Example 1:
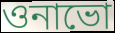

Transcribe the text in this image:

ওনাভো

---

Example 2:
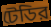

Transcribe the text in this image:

টেডির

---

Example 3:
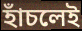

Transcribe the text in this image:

হাঁচলেই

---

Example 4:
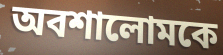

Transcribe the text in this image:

অবশালোমকে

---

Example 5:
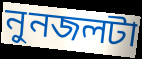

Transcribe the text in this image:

নুনজলটা